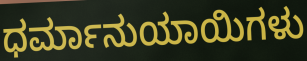
ಧರ್ಮಾನುಯಾಯಿಗಳು